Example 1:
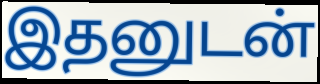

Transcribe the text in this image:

இதனுடன்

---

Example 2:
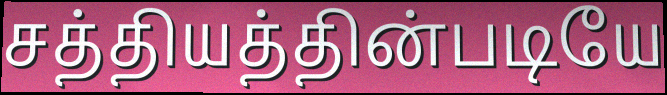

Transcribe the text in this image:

சத்தியத்தின்படியே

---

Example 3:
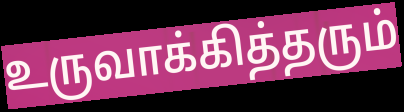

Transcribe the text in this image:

உருவாக்கித்தரும்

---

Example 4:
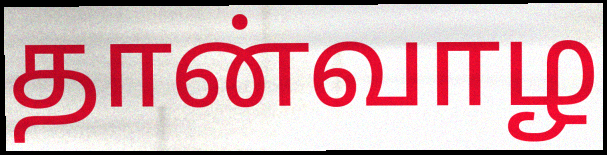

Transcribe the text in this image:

தான்வாழ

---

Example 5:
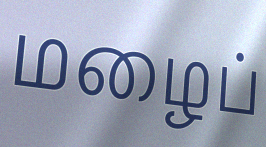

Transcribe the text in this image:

மழைப்